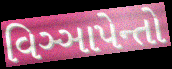
વિઞ્ઞાપેન્તો